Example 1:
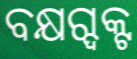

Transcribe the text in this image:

ବକ୍ଷଗ୍ଦକ୍ଟ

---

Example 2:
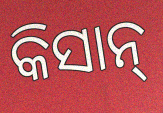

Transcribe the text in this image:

କିସାନ୍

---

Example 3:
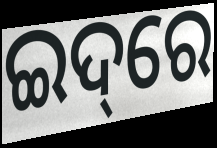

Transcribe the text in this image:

ଇଦ୍‌ରେ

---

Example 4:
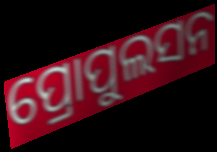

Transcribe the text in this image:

ପ୍ରୋପୁଲସନ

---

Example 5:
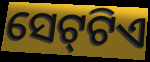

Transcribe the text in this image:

ସେଟ୍‍ଟିଏ